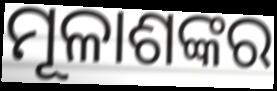
ମୂଳାଶଙ୍କର